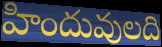
హిందువులది